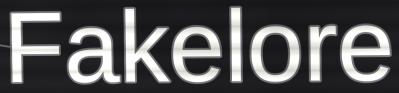
Fakelore